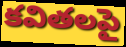
కవితలపై